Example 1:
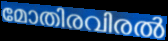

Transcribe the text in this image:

മോതിരവിരൽ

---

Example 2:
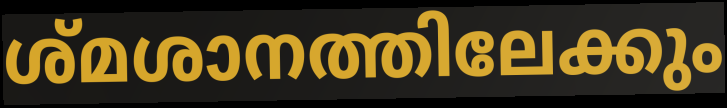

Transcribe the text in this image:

ശ്മശാനത്തിലേക്കും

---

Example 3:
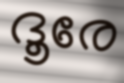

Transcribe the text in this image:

ദൂരേ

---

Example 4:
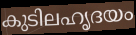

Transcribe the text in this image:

കുടിലഹൃദയം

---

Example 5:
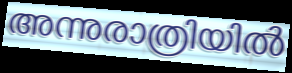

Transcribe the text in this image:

അന്നുരാത്രിയിൽ